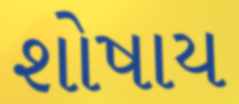
શોષાય